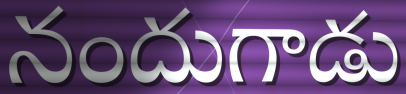
నందుగాడు